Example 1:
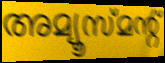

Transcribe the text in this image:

അമ്യൂസ്മന്റ്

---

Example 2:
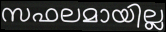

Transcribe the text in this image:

സഫലമായില്ല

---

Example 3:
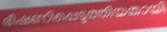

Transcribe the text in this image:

ഭീഷണിപ്പെടുത്തിയതായി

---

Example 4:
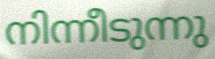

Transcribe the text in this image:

നിന്നീടുന്നു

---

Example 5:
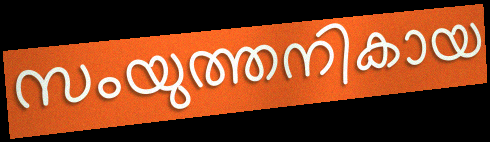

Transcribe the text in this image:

സംയുത്തനികായ